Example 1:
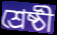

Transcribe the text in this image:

শ্রেষ্ঠী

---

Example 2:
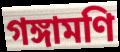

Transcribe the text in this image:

গঙ্গামণি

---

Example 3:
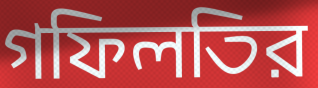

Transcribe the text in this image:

গফিলতির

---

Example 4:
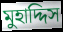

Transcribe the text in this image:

মুহাদ্দিস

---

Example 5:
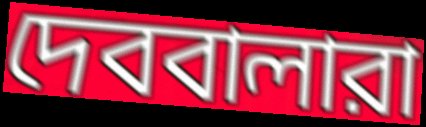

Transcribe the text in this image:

দেববালারা